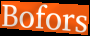
Bofors